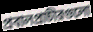
প্রবালপ্রাচীরগুলো